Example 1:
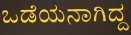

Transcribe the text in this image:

ಒಡೆಯನಾಗಿದ್ದ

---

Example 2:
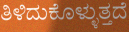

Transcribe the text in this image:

ತಿಳಿದುಕೊಳ್ಳುತ್ತದೆ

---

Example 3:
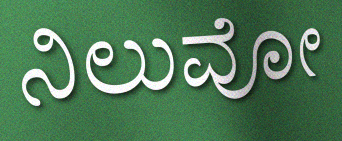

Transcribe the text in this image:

ನಿಲುವೋ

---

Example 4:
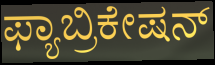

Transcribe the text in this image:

ಫ್ಯಾಬ್ರಿಕೇಷನ್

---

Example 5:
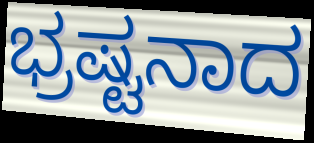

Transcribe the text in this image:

ಭ್ರಷ್ಟನಾದ